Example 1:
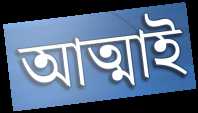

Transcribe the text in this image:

আত্মাই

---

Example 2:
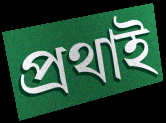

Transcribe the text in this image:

প্ৰথাই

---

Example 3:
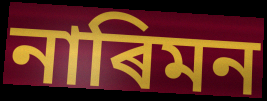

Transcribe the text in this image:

নাৰিমন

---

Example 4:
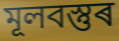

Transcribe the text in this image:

মূলবস্তুৰ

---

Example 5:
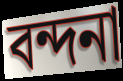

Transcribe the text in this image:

বন্দনা